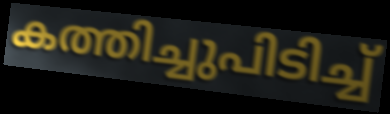
കത്തിച്ചുപിടിച്ച്